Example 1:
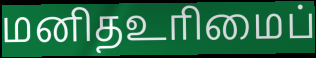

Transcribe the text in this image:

மனிதஉரிமைப்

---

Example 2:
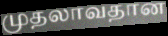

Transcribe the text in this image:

முதலாவதான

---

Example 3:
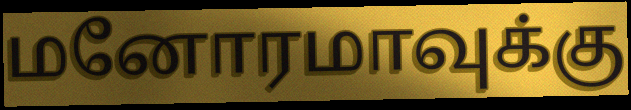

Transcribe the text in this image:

மனோரமாவுக்கு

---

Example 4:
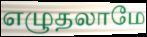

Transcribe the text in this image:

எழுதலாமே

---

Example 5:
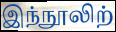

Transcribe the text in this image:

இந்நூலிற்